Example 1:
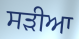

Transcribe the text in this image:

ਸੜੀਆ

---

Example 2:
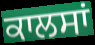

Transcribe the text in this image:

ਕਾਲਸਾਂ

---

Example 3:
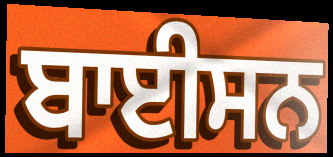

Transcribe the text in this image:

ਬਾਈਸਨ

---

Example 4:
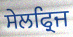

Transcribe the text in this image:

ਸੇਲਫ੍ਰਿਜ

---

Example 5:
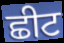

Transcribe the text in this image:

ਛੀਟ